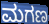
ಮಗಣ